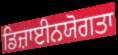
ਡਿਜ਼ਾਈਨਯੋਗਤਾ